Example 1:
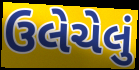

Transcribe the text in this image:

ઉલેચેલું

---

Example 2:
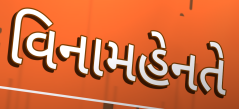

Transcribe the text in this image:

વિનામહેનતે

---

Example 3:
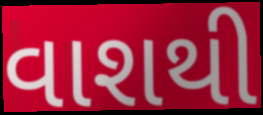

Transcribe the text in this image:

વાશથી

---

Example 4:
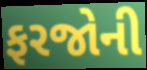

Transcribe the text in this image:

ફરજોની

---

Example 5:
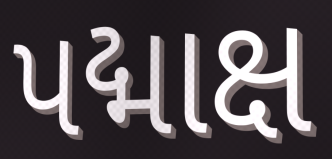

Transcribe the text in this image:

પદ્માક્ષ